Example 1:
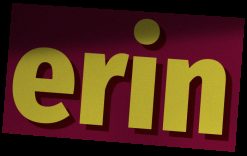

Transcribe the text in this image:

erin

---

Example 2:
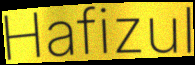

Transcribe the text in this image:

Hafizul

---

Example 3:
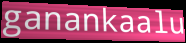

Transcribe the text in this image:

ganankaalu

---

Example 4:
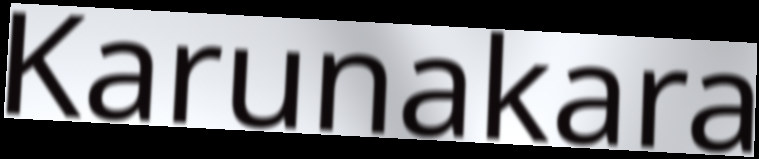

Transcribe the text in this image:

Karunakara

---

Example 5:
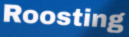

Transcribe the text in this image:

Roosting